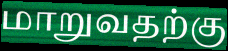
மாறுவதற்கு